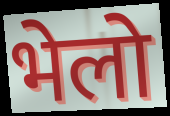
भेलो